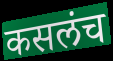
कसलंच